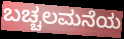
ಬಚ್ಚಲಮನೆಯ